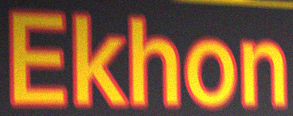
Ekhon